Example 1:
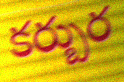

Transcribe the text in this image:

కర్బుర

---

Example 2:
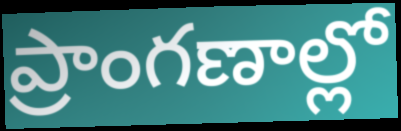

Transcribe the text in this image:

ప్రాంగణాల్లో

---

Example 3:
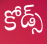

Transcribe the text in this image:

కోడ్స్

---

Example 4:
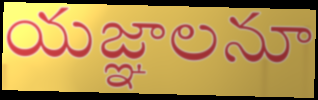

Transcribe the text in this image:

యజ్ఞాలనూ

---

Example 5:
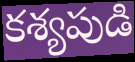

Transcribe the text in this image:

కశ్యపుడి